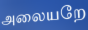
அலையறே